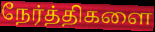
நேர்த்திகளை